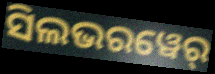
ସିଲଭରୱେର୍